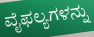
ವೈಫಲ್ಯಗಳನ್ನು